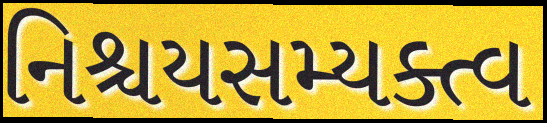
નિશ્ચયસમ્યક્ત્વ